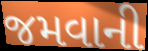
જમવાની